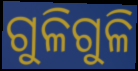
ଗୁଳିଗୁଳି